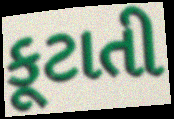
કૂટાતી